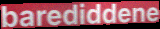
barediddene